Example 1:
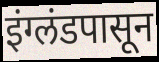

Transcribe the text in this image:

इंग्लंडपासून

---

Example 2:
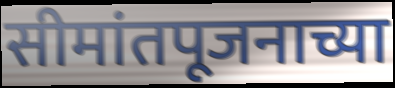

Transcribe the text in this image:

सीमांतपूजनाच्या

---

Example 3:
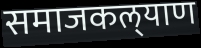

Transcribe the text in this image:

समाजकल्याण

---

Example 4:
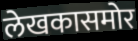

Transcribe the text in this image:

लेखकासमोर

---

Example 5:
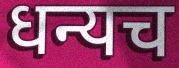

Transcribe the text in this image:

धन्यच